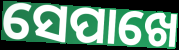
ସେପାଖେ